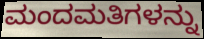
ಮಂದಮತಿಗಳನ್ನು